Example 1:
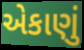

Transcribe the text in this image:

એકાણું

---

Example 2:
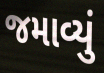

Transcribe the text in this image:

જમાવ્યું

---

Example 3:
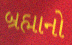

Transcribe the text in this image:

બ્રહ્માનો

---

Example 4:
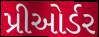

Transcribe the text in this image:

પ્રીઓર્ડર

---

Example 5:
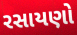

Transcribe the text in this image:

રસાયણો